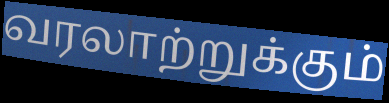
வரலாற்றுக்கும்